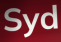
Syd